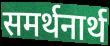
समर्थनार्थ